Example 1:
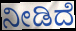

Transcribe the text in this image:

ನೀಡಿದೆ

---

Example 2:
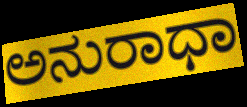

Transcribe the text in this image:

ಅನುರಾಧಾ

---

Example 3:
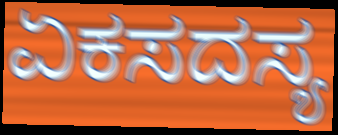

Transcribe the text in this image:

ಏಕಸದಸ್ಯ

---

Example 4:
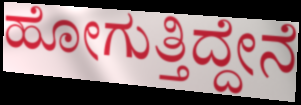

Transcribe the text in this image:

ಹೋಗುತ್ತಿದ್ದೇನೆ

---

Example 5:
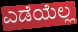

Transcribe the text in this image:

ಎಡೆಯೆಲ್ಲ